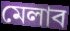
মেলাব